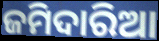
ଜମିଦାରିଆ